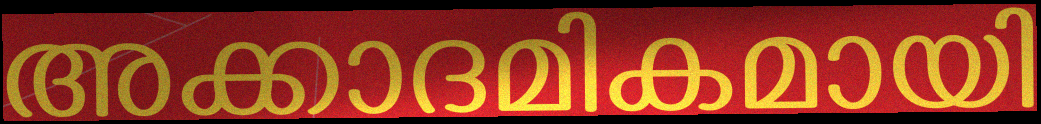
അക്കാദമികമായി